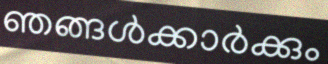
ഞങ്ങൾക്കാർക്കും